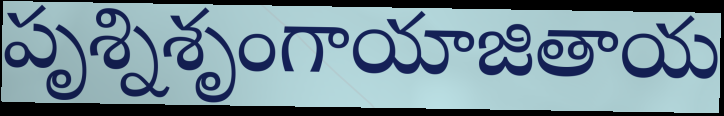
పృశ్నిశృంగాయాజితాయ